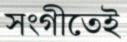
সংগীতেই